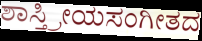
ಶಾಸ್ತ್ರೀಯಸಂಗೀತದ